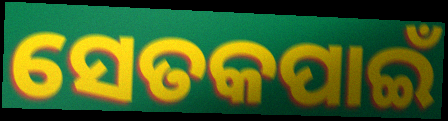
ସେତକପାଇଁ